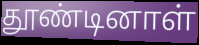
தூண்டினாள்